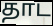
தாட